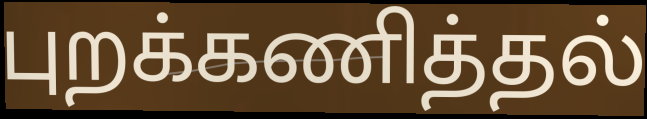
புறக்கணித்தல்